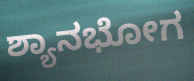
ಶ್ಯಾನಭೋಗ